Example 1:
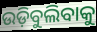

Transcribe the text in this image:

ଉଡ଼ିବୁଲିବାକୁ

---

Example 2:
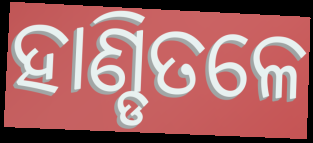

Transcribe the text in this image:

ହାଣ୍ଡିତଳେ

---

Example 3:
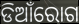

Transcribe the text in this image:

ଡିଆଁରୋଗ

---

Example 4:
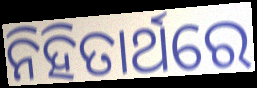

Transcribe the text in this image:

ନିହିତାର୍ଥରେ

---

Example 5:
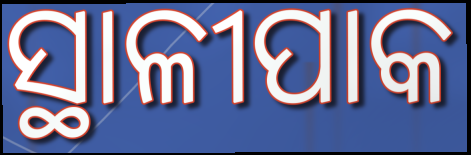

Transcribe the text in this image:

ସ୍ଥାଳୀପାକ